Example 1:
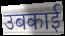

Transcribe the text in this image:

उबकाई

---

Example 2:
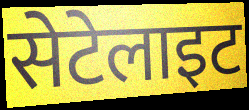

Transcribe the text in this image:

सेटेलाइट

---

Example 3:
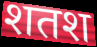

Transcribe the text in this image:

शतश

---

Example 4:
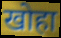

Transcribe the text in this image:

खोहा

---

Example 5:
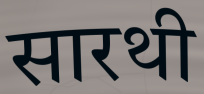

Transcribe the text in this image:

सारथी